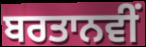
ਬਰਤਾਨਵੀਂ